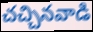
చచ్చినవాడి